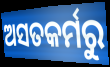
ଅସତକର୍ମରୁ